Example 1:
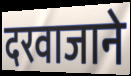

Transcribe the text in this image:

दरवाजाने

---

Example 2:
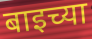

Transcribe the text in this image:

बाइच्या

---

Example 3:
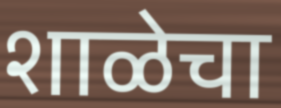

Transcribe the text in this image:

शाळेचा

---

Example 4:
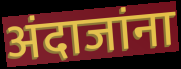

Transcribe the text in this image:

अंदाजांना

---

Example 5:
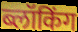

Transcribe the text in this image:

ब्लॉकिंग